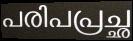
പരിപപ്രച്ഛ